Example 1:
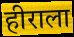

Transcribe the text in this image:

हीराला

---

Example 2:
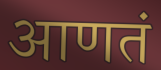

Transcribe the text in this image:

आणतं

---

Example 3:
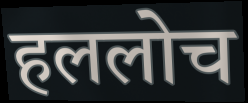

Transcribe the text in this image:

हललोच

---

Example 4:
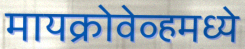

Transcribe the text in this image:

मायक्रोवेव्हमध्ये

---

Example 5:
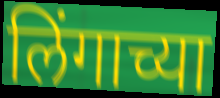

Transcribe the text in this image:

लिंगाच्या